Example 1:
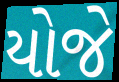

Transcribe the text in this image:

યોજે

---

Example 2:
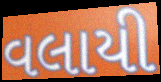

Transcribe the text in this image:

વલાયી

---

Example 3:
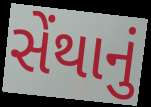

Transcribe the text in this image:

સેંથાનું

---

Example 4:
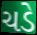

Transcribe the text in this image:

ચડે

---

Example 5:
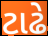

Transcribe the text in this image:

ટાઢે